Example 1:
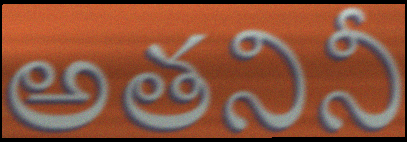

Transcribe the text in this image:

అతనినీ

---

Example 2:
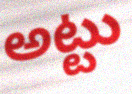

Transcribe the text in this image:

అట్టు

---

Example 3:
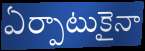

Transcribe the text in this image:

ఏర్పాటుకైనా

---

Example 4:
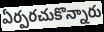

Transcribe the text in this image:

ఏర్పరచుకొన్నారు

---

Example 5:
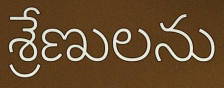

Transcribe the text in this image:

శ్రేణులను